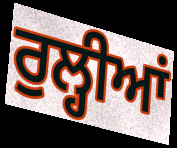
ਰੁਲ੍ਹੀਆਂ